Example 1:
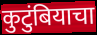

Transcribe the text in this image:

कुटुंबियाचा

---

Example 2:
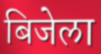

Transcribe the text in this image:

बिजेला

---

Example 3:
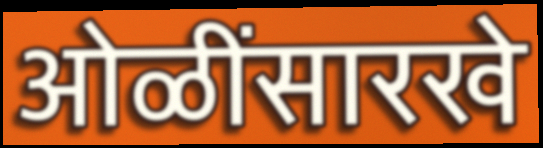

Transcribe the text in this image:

ओळींसारखे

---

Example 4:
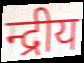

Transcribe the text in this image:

न्द्रीय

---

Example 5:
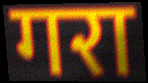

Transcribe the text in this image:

गरा